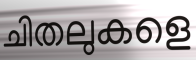
ചിതലുകളെ